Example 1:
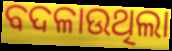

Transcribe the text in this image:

ବଦଳାଉଥିଲା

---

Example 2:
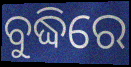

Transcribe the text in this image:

ବୁଦ୍ଧିରେ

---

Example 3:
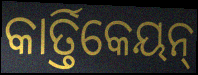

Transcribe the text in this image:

କାର୍ତ୍ତିକେୟନ୍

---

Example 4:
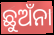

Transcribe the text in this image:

ଛୁଅଁନା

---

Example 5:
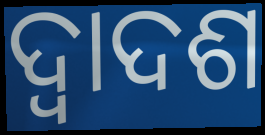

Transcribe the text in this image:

ଦ୍ବାଦଶ